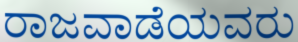
ರಾಜವಾಡೆಯವರು